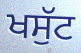
ਖਸੁੱਟ